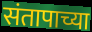
संतापाच्या